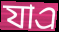
যাএ